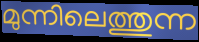
മുന്നിലെത്തുന്ന